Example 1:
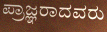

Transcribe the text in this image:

ಪ್ರಾಜ್ಞರಾದವರು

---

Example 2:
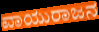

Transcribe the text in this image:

ವಾಯುರಾಜನ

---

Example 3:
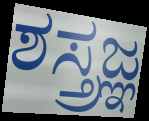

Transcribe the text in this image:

ಶಸ್ತ್ರಜ್ಞ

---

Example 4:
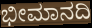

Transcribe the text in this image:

ಭೀಮಾನದಿ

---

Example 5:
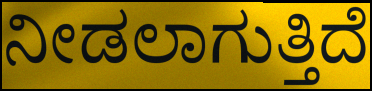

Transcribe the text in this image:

ನೀಡಲಾಗುತ್ತಿದೆ